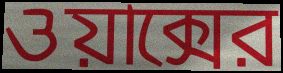
ওয়াক্সের